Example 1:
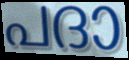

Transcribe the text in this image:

പദാ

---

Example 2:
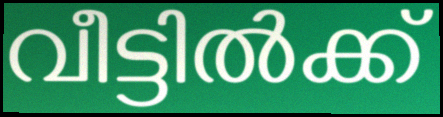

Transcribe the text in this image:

വീട്ടിൽക്ക്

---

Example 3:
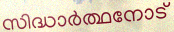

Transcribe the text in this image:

സിദ്ധാർത്ഥനോട്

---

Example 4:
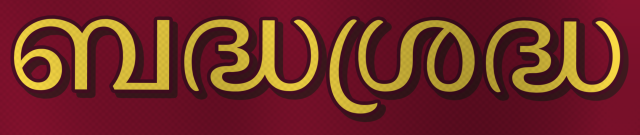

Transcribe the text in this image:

ബദ്ധശ്രദ്ധ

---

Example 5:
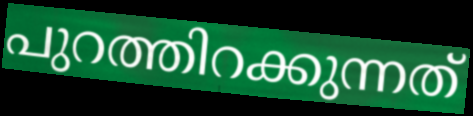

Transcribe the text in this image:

പുറത്തിറക്കുന്നത്